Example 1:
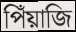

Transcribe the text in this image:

পিঁয়াজি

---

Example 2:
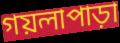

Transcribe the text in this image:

গয়লাপাড়া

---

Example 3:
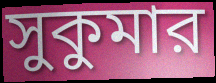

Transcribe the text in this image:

সুকুমার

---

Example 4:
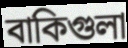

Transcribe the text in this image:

বাকিগুলা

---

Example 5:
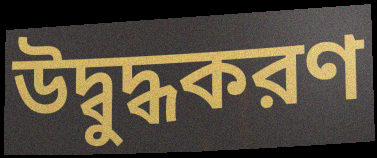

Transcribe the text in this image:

উদ্বুদ্ধকরণ